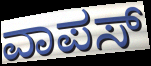
ವಾಪಸ್